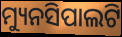
ମ୍ୟୁନସିପାଲଟି